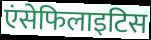
एंसेफिलाइटिस